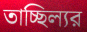
তাচ্ছিল্যর